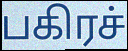
பகிரச்